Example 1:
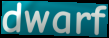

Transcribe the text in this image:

dwarf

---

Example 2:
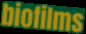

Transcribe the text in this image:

biofilms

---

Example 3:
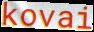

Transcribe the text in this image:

kovai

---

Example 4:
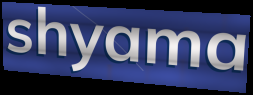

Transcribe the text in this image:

shyama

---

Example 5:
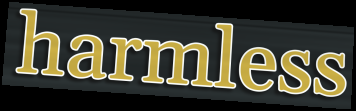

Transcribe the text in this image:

harmless